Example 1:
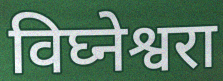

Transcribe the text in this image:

विघ्नेश्वरा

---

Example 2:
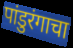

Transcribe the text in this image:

पांडुरंगाचा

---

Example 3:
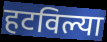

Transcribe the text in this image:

हटविल्या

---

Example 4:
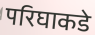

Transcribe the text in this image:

परिघाकडे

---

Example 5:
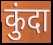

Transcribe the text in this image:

कुंदा